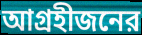
আগ্রহীজনের